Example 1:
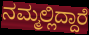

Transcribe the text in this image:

ನಮ್ಮಲ್ಲಿದ್ದಾರೆ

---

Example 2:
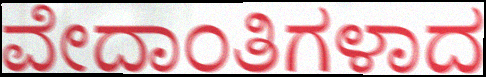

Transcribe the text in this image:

ವೇದಾಂತಿಗಳಾದ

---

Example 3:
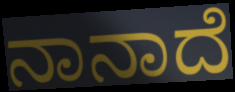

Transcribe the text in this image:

ನಾನಾದೆ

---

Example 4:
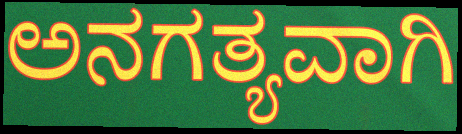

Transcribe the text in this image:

ಅನಗತ್ಯವಾಗಿ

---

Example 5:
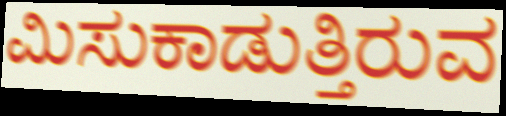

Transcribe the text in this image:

ಮಿಸುಕಾಡುತ್ತಿರುವ